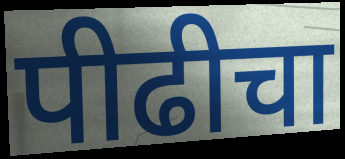
पीढीचा